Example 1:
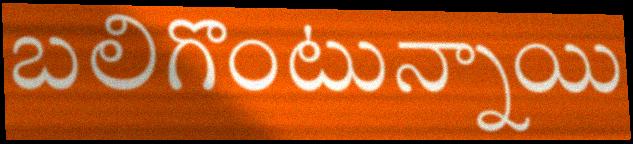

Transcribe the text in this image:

బలిగొంటున్నాయి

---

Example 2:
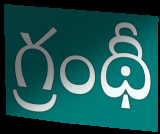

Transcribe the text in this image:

గ్రంథీ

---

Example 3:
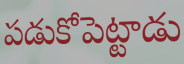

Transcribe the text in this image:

పడుకోపెట్టాడు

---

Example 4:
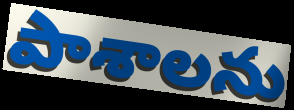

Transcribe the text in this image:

పాశాలను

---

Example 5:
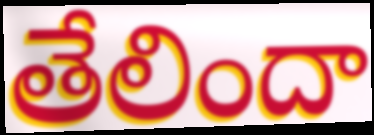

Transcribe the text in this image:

తేలిందా